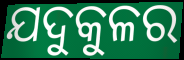
ଯଦୁକୁଳର